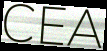
CEA